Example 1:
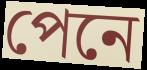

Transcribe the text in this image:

পেনে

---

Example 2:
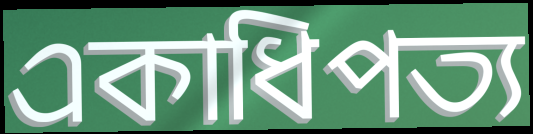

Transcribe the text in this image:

একাধিপত্য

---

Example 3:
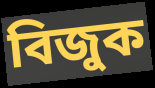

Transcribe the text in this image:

বিজুক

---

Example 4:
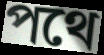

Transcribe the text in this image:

পথে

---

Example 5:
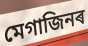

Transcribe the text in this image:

মেগাজিনৰ